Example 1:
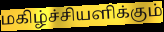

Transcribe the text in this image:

மகிழ்ச்சியளிக்கும்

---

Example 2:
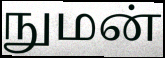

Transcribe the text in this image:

நுமன்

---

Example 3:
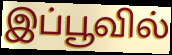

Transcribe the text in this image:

இப்பூவில்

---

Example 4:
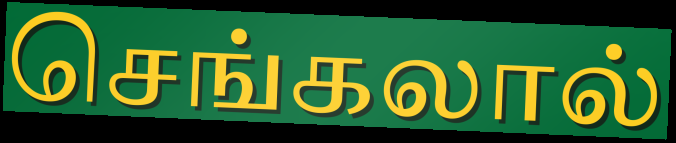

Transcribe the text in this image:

செங்கலால்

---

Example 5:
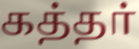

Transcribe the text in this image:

கத்தர்